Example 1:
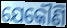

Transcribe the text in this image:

ଯେକୌଣି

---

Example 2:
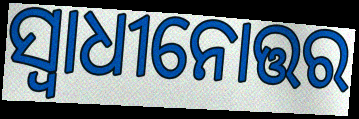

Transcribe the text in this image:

ସ୍ୱାଧୀନୋତ୍ତର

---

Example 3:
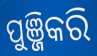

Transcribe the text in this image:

ପୁଞ୍ଜିକରି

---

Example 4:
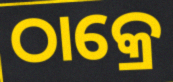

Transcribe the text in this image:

ଠାକ୍ରେ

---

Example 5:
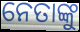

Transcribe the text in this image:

ନେତାଙ୍କୁ